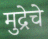
मुद्रेचे